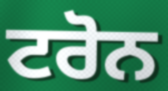
ਟਰੋਨ